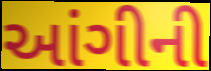
આંગીની